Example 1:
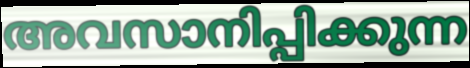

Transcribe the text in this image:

അവസാനിപ്പിക്കുന്ന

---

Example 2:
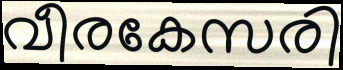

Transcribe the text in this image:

വീരകേസരി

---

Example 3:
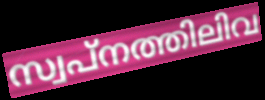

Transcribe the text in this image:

സ്വപ്നത്തിലിവ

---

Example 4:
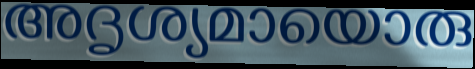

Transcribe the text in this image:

അദൃശ്യമായൊരു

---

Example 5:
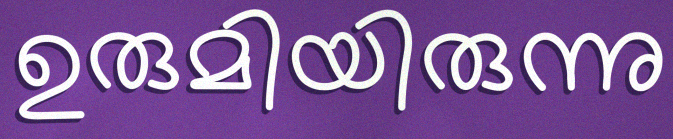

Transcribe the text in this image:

ഉരുമിയിരുന്നു